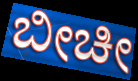
ಬೀಚೀ